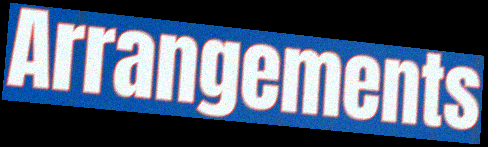
Arrangements